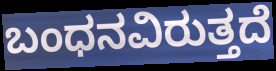
ಬಂಧನವಿರುತ್ತದೆ